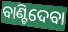
ବାଣ୍ଟିଦେବା